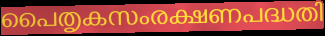
പൈതൃകസംരക്ഷണപദ്ധതി